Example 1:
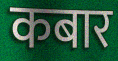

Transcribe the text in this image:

कबार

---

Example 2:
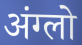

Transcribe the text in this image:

अंग्लो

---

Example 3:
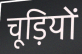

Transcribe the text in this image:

चूड़ियों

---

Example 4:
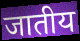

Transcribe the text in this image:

जातीय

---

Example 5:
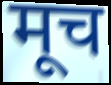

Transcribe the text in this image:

मूच